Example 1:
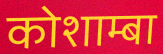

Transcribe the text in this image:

कोशाम्बा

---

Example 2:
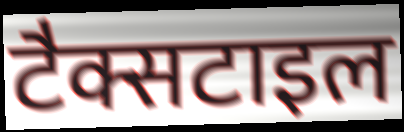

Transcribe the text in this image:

टैक्सटाइल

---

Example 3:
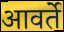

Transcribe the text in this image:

आवर्ते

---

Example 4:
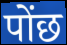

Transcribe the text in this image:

पोंछ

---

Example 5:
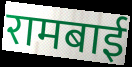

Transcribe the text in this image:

रामबाई